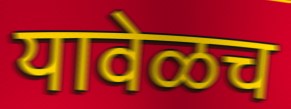
यावेळच